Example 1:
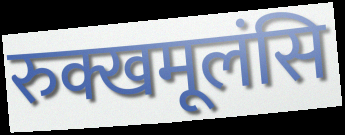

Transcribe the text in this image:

रुक्खमूलंसि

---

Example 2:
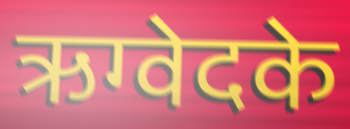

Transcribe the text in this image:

ऋग्वेदके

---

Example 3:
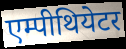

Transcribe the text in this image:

एम्पीथियेटर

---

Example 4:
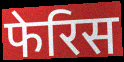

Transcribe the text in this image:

फेरिस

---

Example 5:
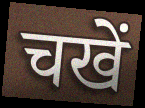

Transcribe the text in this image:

चखें